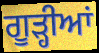
ਗੂੜ੍ਹੀਆਂ